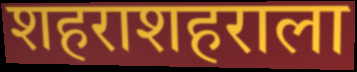
शहराशहराला